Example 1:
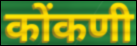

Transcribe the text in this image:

कोंकणी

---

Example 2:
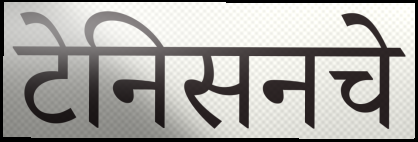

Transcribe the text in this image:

टेनिसनचे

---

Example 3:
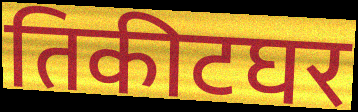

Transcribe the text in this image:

तिकीटघर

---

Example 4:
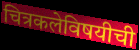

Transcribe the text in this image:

चित्रकलेविषयीची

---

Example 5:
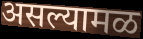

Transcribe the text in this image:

असल्यामळ